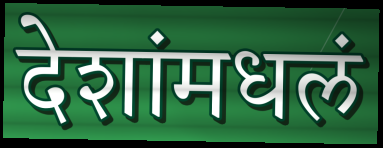
देशांमधलं